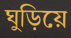
ঘুড়িয়ে